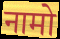
नामो